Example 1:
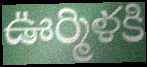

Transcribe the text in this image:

ఊర్మిళకి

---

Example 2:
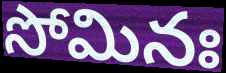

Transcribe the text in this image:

సోమినః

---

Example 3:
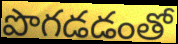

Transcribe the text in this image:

పొగడడంతో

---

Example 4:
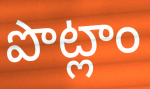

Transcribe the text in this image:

పొట్లాం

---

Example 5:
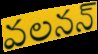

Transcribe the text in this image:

వలనన్